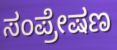
ಸಂಪ್ರೇಷಣ